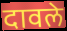
दावले